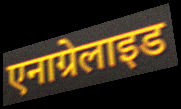
एनाग्रेलाइड